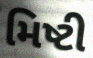
મિષ્ટી